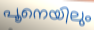
പൂനെയിലും